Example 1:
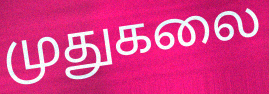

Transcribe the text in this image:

முதுகலை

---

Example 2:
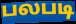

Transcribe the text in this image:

பலபடி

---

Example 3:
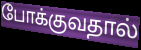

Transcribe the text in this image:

போக்குவதால்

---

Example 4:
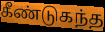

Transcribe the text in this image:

கீண்டுகந்த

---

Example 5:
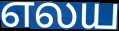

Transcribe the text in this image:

எலய